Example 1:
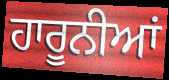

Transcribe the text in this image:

ਹਾਰੂਨੀਆਂ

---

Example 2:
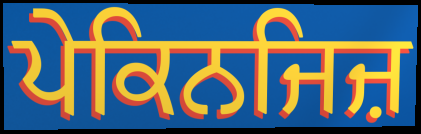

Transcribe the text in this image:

ਪੇਕਿਨਜਿਜ਼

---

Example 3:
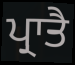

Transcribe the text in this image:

ਪ੍ਰਾਤੈ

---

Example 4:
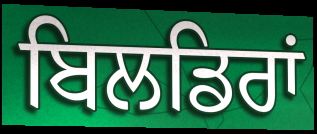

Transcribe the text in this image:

ਬਿਲਡਿਰਾਂ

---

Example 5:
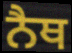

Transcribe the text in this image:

ਨੈਥ